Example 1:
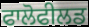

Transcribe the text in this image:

ਫਾਲੋਫੀਲਡ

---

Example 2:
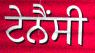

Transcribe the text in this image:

ਟੇਨੈਂਸੀ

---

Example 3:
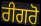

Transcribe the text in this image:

ਰੀਗਰੋ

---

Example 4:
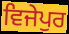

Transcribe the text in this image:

ਵਿਜੇਪੁਰ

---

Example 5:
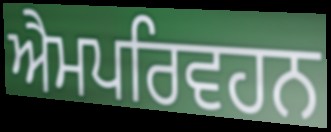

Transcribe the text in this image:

ਐਮਪਰਿਵਹਨ